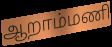
ஆறாம்மணி